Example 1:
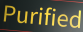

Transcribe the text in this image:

Purified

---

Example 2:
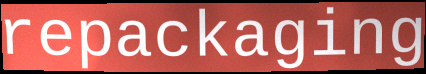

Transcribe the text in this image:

repackaging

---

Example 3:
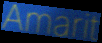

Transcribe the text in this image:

Amarit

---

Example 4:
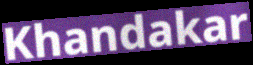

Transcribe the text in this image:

Khandakar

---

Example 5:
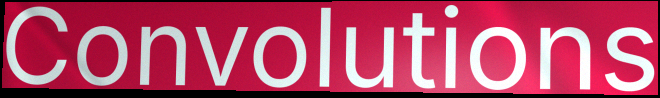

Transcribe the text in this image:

Convolutions